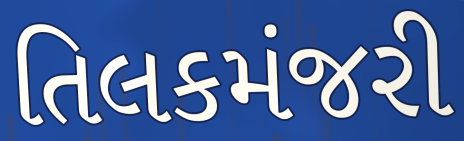
તિલકમંજરી